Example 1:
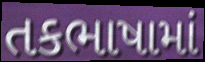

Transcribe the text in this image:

તકભાષામાં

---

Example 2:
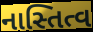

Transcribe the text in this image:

નાસ્તિત્વ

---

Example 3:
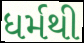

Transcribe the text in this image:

ધર્મથી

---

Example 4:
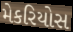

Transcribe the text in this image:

મેકરિયોસ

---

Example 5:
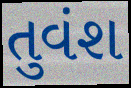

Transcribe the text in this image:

તુવંશ